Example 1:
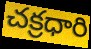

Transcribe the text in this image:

చక్రధారి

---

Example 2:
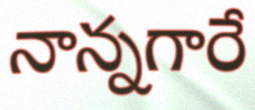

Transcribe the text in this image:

నాన్నగారే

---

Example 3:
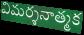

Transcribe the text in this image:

విమర్శనాత్మక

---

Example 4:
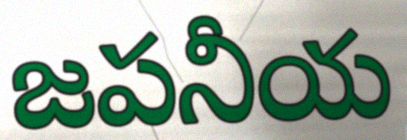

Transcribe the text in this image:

జపనీయ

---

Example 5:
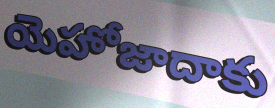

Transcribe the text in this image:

యెహోజాదాకు